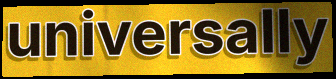
universally